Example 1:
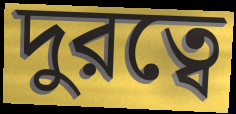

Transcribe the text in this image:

দুরত্বে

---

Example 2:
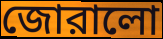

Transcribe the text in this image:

জোরালো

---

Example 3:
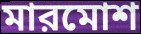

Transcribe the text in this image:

মারমোশ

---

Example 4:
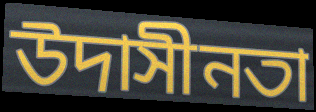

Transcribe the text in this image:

উদাসীনতা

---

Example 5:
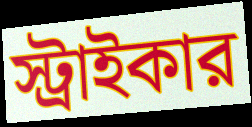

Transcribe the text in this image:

স্ট্রাইকার